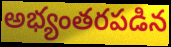
అభ్యంతరపడిన